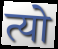
त्यो